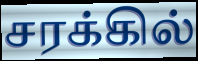
சரக்கில்